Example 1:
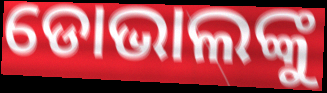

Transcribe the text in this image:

ଡୋଭାଲଙ୍କୁ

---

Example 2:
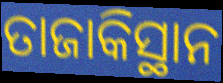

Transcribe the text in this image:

ତାଜାକିସ୍ଥାନ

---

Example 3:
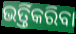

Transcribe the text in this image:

ଭର୍ତ୍ତିକରିବା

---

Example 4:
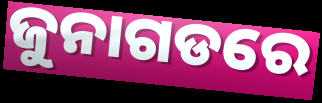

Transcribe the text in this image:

ଜୁନାଗଡରେ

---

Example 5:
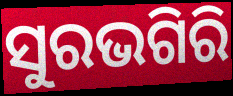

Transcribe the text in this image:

ସୁରଭଗିରି